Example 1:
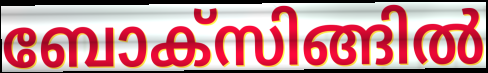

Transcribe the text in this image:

ബോക്സിങ്ങിൽ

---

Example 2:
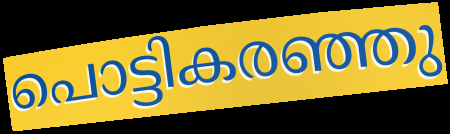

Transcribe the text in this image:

പൊട്ടികരഞ്ഞു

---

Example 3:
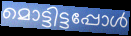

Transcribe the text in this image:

മൊട്ടിട്ടപ്പോൾ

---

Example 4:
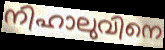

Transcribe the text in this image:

നിഹാലുവിനെ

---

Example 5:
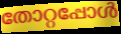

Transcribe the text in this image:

തോറ്റപ്പോൾ